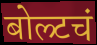
बोल्टचं